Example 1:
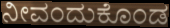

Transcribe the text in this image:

ನೀವಂದುಕೊಂಡ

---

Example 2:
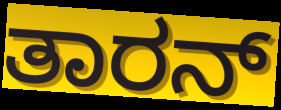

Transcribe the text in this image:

ತಾರನ್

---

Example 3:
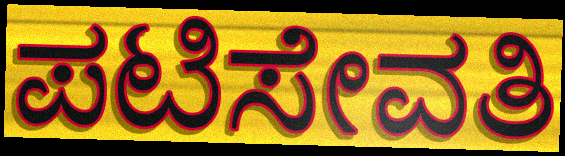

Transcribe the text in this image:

ಪಟಿಸೇವತಿ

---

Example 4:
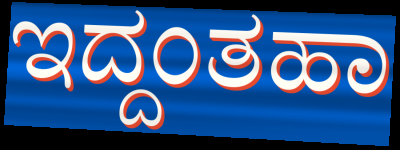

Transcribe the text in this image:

ಇದ್ದಂತಹಾ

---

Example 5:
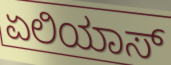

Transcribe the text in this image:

ಏಲಿಯಾಸ್